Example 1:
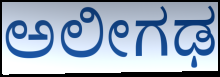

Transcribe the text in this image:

ಅಲೀಗಢ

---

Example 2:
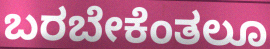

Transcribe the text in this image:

ಬರಬೇಕೆಂತಲೂ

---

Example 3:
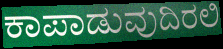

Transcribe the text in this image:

ಕಾಪಾಡುವುದಿರಲಿ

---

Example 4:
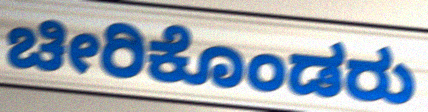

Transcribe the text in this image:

ಚೀರಿಕೊಂಡರು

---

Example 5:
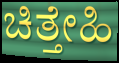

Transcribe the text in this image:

ಚಿತ್ತೇಹಿ